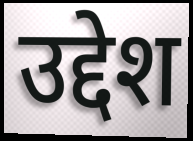
उद्देश